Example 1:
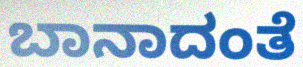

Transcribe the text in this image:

ಬಾನಾದಂತೆ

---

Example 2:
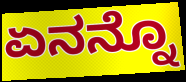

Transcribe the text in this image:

ಏನನ್ನೊ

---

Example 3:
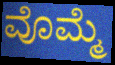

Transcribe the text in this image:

ವೊಮ್ಮೆ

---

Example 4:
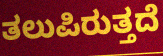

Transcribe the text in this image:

ತಲುಪಿರುತ್ತದೆ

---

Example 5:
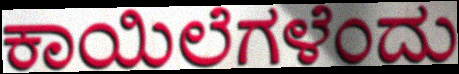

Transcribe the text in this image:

ಕಾಯಿಲೆಗಳೆಂದು